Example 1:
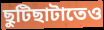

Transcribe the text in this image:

ছুটিছাটাতেও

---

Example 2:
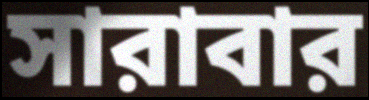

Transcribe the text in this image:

সারাবার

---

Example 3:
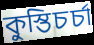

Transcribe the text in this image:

কুস্তিচর্চা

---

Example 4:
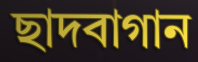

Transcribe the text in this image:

ছাদবাগান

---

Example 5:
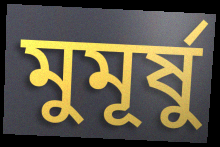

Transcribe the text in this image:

মুমূর্ষু